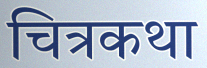
चित्रकथा